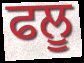
ਫਲੂ